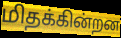
மிதக்கின்றன